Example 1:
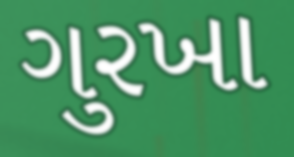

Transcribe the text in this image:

ગુરખા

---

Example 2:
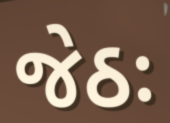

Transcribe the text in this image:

જેઠઃ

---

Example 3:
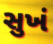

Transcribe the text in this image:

સુખં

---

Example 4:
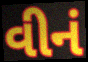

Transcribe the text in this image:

વીનં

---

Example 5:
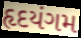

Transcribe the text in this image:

હૃદયંગમ